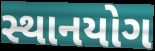
સ્થાનયોગ